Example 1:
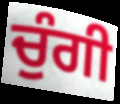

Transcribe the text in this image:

ਚੁੰਗੀ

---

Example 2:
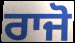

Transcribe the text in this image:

ਰਾਜੋ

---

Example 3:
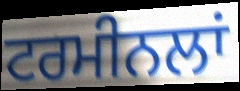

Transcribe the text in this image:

ਟਰਮੀਨਲਾਂ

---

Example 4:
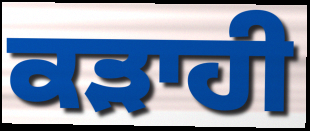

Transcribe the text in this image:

ਕੜਾਹੀ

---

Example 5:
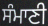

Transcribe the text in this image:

ਸੰਮਾਣੀ